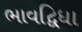
ભાવદ્વિધા